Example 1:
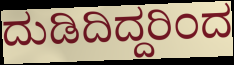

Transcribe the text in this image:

ದುಡಿದಿದ್ದರಿಂದ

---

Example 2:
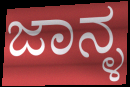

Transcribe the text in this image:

ಜಾನ್ಳ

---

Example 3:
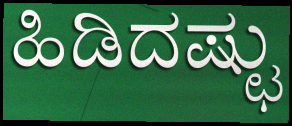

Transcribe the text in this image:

ಹಿಡಿದಷ್ಟು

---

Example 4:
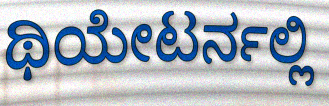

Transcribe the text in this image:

ಥಿಯೇಟರ್ನಲ್ಲಿ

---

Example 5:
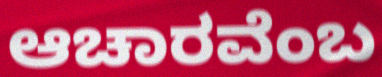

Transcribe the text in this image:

ಆಚಾರವೆಂಬ